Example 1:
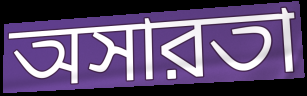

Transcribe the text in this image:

অসারতা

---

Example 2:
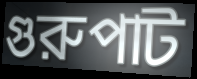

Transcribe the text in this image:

গুরুপাট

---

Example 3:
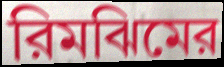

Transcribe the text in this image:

রিমঝিমের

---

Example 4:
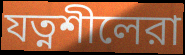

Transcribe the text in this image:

যত্নশীলেরা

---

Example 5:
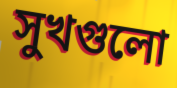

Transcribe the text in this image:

সুখগুলো